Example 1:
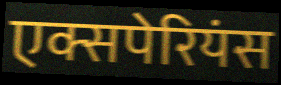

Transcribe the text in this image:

एक्सपेरियंस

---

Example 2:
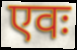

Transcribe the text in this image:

एवः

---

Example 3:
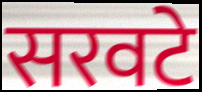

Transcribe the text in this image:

सरवटे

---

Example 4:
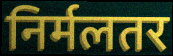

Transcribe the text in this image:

निर्मलतर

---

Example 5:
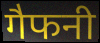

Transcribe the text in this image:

गैफनी